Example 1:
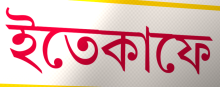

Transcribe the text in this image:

ইতেকাফে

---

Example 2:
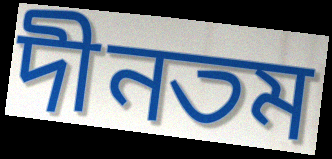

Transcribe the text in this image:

দীনতম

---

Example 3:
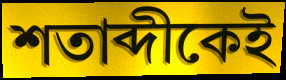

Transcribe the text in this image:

শতাব্দীকেই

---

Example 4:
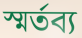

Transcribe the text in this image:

স্মর্তব্য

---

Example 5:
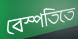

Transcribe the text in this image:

বেস্পতিতে